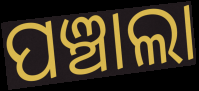
ପଞ୍ଚାଲା